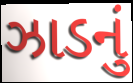
ઝાડનું